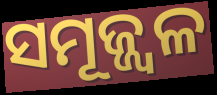
ସମୂଜ୍ଜ୍ୱଳ